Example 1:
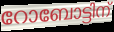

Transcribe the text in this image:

റോബോട്ടിന്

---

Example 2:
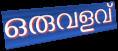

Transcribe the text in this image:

ഒരുവളവ്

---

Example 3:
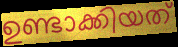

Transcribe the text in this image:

ഉണ്ടാക്കിയത്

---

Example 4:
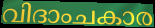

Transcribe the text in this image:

വിദാംചകാര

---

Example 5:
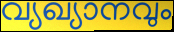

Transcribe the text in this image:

വ്യഖ്യാനവും